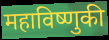
महाविष्णुकी